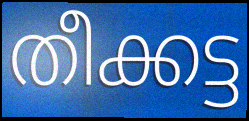
തീക്കട്ട